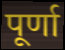
पूर्णा